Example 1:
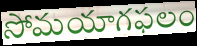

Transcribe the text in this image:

సోమయాగఫలం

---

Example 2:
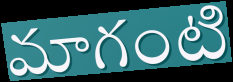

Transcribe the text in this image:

మాగంటి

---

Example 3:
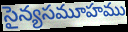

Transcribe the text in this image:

సైన్యసమూహము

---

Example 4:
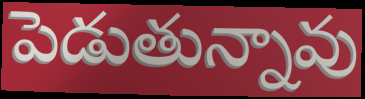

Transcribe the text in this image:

పెడుతున్నావు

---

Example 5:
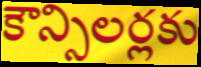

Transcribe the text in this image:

కౌన్సిలర్లకు